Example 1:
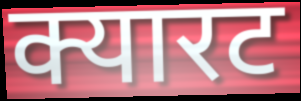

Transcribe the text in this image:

क्यारट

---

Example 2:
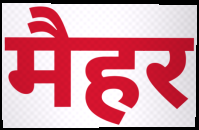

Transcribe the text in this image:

मैहर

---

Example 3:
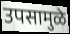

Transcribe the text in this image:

उपसामुळे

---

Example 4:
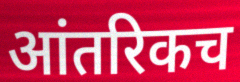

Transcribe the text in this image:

आंतरिकच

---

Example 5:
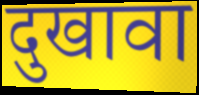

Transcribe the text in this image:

दुखावा